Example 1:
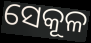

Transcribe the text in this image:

ସେକୂଳ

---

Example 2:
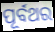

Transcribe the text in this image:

ପୂର୍ବଥର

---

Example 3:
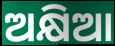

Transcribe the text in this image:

ଅକ୍ଷିଆ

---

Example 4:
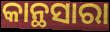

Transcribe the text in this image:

କାନ୍ଥସାରା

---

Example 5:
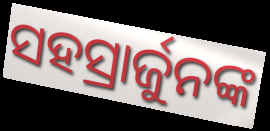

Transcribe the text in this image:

ସହସ୍ରାର୍ଜୁନଙ୍କ